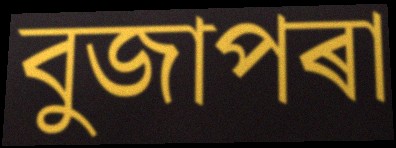
বুজাপৰা